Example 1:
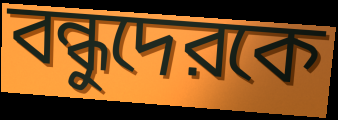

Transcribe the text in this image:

বন্ধুদেরকে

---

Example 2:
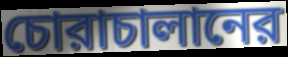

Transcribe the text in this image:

চোরাচালানের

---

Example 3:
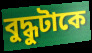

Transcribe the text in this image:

বুদ্ধুটাকে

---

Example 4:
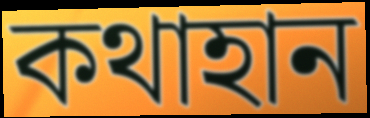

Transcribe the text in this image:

কথাহান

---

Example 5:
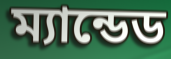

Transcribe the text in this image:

ম্যান্ডেড